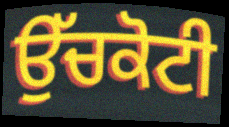
ਉੱਚਕੋਟੀ